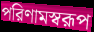
পরিণামস্বরূপ